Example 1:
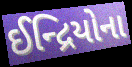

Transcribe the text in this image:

ઈન્દ્રિયોના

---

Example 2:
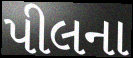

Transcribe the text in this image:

પીલના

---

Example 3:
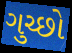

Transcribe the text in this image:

ગુચ્છો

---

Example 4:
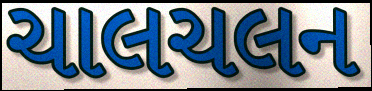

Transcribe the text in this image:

ચાલચલન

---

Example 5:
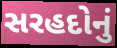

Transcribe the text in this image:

સરહદોનું